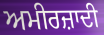
ਅਮੀਰਜ਼ਾਦੀ